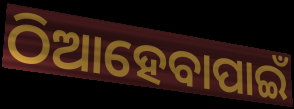
ଠିଆହେବାପାଇଁ